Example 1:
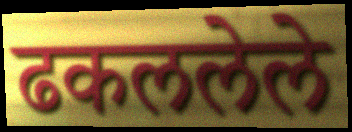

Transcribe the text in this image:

ढकललेले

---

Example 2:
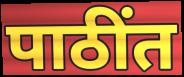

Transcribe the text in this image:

पाठींत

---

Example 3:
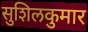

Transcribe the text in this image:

सुशिलकुमार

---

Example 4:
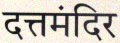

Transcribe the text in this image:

दत्तमंदिर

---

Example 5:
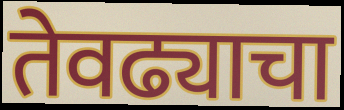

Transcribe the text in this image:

तेवढ्याचा